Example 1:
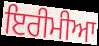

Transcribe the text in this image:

ਇਰੀਮੀਆ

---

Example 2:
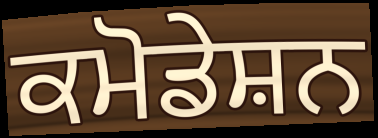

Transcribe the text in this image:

ਕਮੋਡੇਸ਼ਨ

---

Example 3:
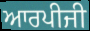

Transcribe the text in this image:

ਆਰਪੀਜੀ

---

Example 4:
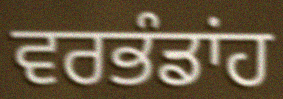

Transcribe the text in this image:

ਵਰਭੰਡਾਂਹ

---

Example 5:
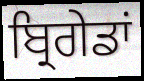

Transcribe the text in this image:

ਬ੍ਰਿਗੇਡਾਂ